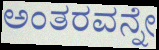
ಅಂತರವನ್ನೇ